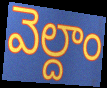
వెల్దాం